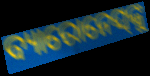
ବ୍ୟାରୋନେସ୍‌ଙ୍କୁ